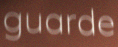
guarde